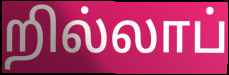
றில்லாப்